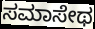
ಸಮಾಸೇಥ